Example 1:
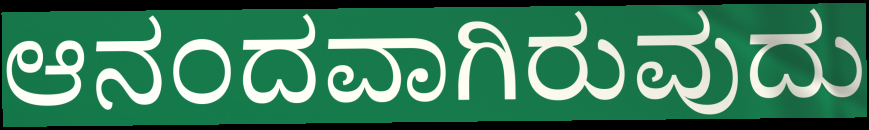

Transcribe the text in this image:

ಆನಂದವಾಗಿರುವುದು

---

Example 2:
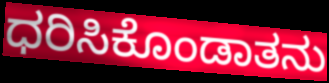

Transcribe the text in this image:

ಧರಿಸಿಕೊಂಡಾತನು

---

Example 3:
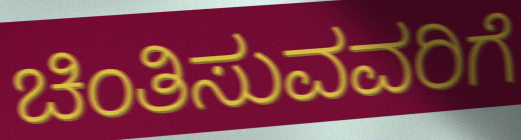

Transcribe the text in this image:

ಚಿಂತಿಸುವವರಿಗೆ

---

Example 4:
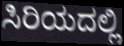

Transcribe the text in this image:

ಸಿರಿಯದಲ್ಲಿ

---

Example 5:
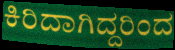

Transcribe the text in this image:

ಕಿರಿದಾಗಿದ್ದರಿಂದ